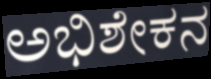
ಅಭಿಶೇಕನ